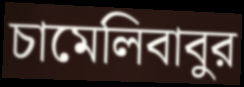
চামেলিবাবুর